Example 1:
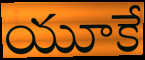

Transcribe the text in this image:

యూకే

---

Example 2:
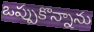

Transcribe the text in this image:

ఒప్పుకొన్నాను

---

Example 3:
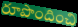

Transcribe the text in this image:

రూపొందించి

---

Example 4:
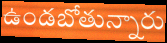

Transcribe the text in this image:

ఉండబోతున్నారు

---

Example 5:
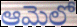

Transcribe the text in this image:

ఆమెలో